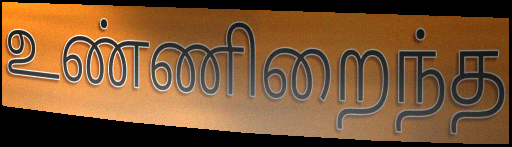
உண்ணிறைந்த